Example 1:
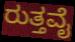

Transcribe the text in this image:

ರುತ್ತವೈ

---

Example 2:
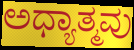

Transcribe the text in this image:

ಅಧ್ಯಾತ್ಮವು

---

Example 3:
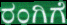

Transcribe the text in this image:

ರಂಗಿಗೆ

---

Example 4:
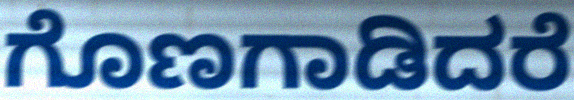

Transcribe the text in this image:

ಗೊಣಗಾಡಿದರೆ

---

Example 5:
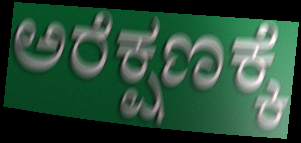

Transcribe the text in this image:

ಅರೆಕ್ಷಣಕ್ಕೆ